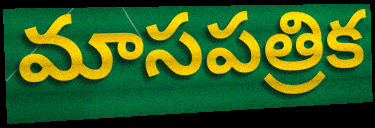
మాసపత్రిక